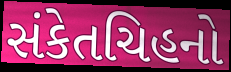
સંકેતચિહનો